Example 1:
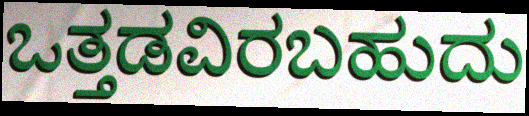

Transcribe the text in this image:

ಒತ್ತಡವಿರಬಹುದು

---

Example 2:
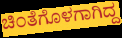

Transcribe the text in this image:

ಚಿಂತೆಗೊಳಗಾಗಿದ್ದ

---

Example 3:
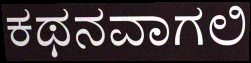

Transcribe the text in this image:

ಕಥನವಾಗಲಿ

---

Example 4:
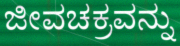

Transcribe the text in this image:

ಜೀವಚಕ್ರವನ್ನು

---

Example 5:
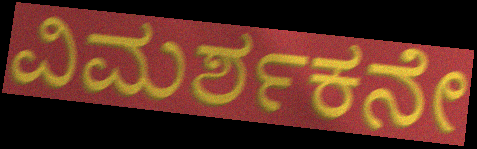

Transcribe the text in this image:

ವಿಮರ್ಶಕನೇ